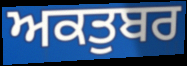
ਅਕਤੁਬਰ